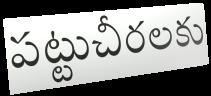
పట్టుచీరలకు